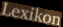
Lexikon